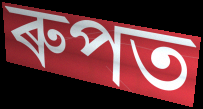
ৰুপত